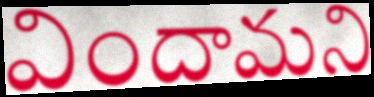
విందామని